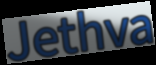
Jethva